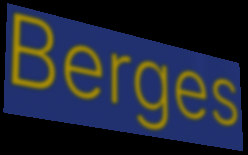
Berges